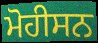
ਮੋਹੀਸਨ